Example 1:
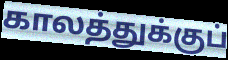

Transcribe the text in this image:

காலத்துக்குப்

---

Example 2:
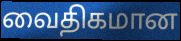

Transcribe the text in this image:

வைதிகமான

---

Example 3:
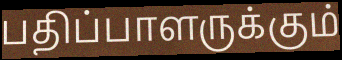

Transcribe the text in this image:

பதிப்பாளருக்கும்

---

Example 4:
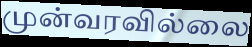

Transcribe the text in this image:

முன்வரவில்லை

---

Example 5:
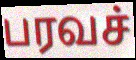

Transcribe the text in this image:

பரவச்